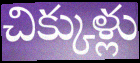
చిక్కుళ్లు